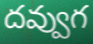
దవ్వుగ